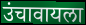
उंचावायला